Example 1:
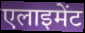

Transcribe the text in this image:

एलाइमेंट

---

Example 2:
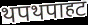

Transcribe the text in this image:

थपथपाहट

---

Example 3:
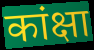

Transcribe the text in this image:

कांक्षा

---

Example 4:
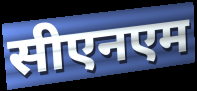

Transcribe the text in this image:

सीएनएम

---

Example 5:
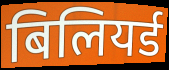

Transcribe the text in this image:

बिलियर्ड